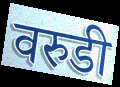
वरुडी